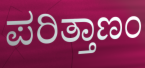
ಪರಿತ್ತಾಣಂ